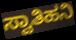
ಸ್ವಾತಿಹನಿ